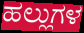
ಹಲ್ಲುಗಳ